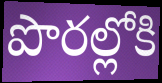
పొరల్లోకి